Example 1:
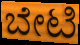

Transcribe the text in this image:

ಬೇಟಿ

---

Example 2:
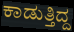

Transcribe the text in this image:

ಕಾಡುತ್ತಿದ್ದ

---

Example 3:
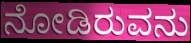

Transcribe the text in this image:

ನೋಡಿರುವನು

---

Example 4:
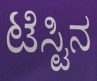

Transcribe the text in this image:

ಟೆಸ್ಟಿನ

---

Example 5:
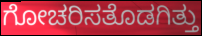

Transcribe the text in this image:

ಗೋಚರಿಸತೊಡಗಿತ್ತು